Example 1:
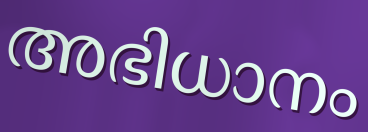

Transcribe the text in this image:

അഭിധാനം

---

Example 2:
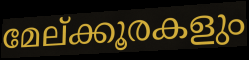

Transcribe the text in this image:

മേല്ക്കൂരകളും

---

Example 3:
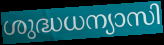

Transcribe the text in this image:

ശുദ്ധധന്യാസി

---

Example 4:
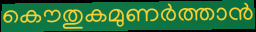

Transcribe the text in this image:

കൌതുകമുണർത്താൻ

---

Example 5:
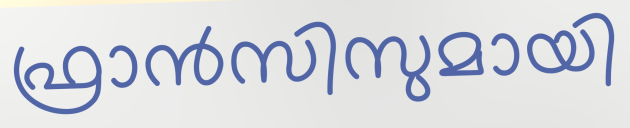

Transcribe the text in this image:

ഫ്രാൻസിസുമായി